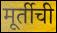
मूर्तीची